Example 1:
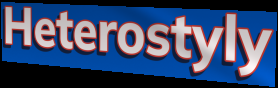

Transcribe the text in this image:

Heterostyly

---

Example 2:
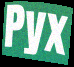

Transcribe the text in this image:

Pyx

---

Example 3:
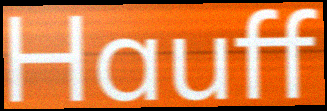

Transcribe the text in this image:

Hauff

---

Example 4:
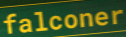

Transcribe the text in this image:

falconer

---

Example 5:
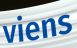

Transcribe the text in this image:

viens